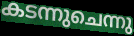
കടന്നുചെന്നു